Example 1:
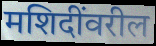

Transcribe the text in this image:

मशिदींवरील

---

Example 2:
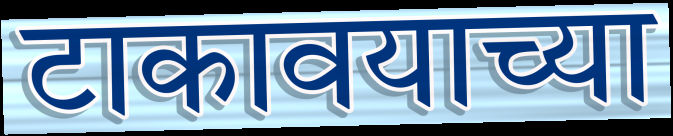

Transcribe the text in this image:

टाकावयाच्या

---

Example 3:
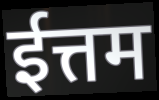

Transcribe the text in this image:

ईत्तम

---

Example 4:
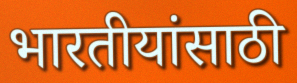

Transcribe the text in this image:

भारतीयांसाठी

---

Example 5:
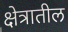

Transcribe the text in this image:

क्षेत्रातील